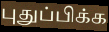
புதுப்பிக்க